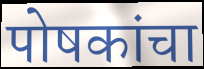
पोषकांचा